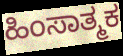
ಹಿಂಸಾತ್ಮಕ